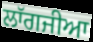
ਲਾੱਗਜੀਆ